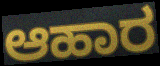
ಆಹಾರ